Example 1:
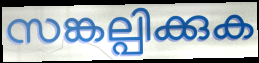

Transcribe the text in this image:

സങ്കല്പിക്കുക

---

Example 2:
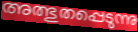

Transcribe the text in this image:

അത്ഭുതപ്പെടുന്നു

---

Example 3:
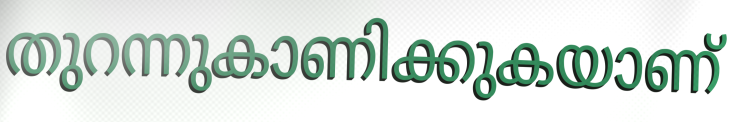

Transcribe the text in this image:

തുറന്നുകാണിക്കുകയാണ്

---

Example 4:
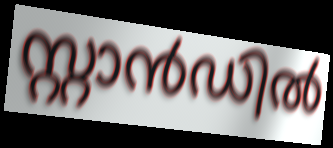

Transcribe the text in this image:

സ്റ്റാൻഡിൽ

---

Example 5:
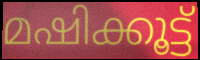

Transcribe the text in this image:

മഷിക്കൂട്ട്